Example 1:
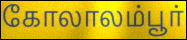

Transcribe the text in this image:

கோலாலம்பூர்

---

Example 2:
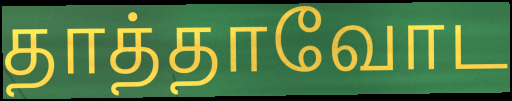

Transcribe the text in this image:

தாத்தாவோட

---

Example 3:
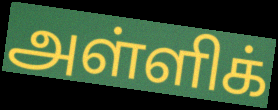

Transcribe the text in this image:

அள்ளிக்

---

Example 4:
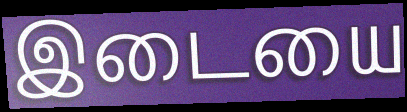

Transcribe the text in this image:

இடையை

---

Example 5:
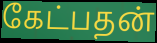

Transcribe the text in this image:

கேட்பதன்